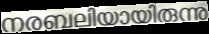
നരബലിയായിരുന്നു